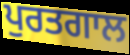
ਪੁਰਤਗਾਲ